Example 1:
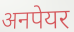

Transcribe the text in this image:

अनपेयर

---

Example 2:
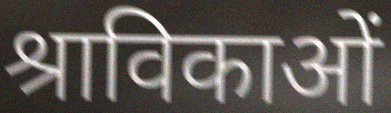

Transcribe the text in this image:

श्राविकाओं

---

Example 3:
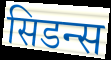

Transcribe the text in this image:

सिडन्स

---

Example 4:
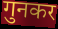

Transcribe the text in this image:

गुनकर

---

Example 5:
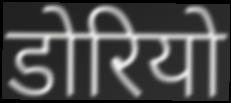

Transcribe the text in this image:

डोरियो